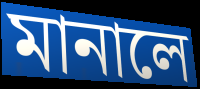
মানালে